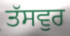
ਤੱਸਵੁਰ